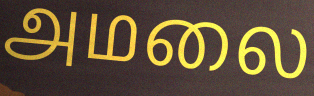
அமலை